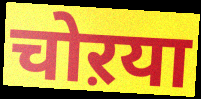
चोऱया